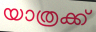
യാത്രക്ക്